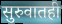
सुरुवातही